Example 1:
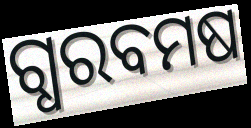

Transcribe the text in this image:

ଗ୍ଧରବମଷ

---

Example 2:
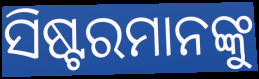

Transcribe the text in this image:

ସିଷ୍ଟରମାନଙ୍କୁ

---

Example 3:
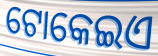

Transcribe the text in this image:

ଟୋକେଇଏ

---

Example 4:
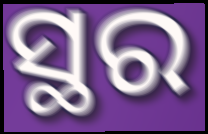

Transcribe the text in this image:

ସ୍ଥର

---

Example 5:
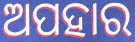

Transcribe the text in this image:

ଅପହାର